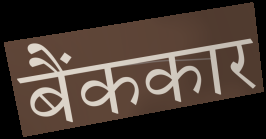
बैंककार